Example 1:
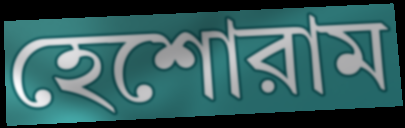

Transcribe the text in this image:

হেশোরাম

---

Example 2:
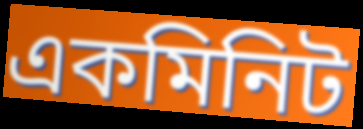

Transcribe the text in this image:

একমিনিট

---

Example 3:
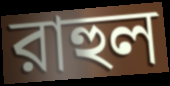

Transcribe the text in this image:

রাহুল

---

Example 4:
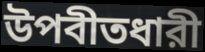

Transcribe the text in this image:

উপবীতধারী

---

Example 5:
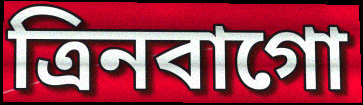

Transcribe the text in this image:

ত্রিনবাগো